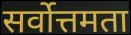
सर्वोत्तमता